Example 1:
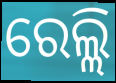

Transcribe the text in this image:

ରେଲ୍ଲି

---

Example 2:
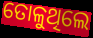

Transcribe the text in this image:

ତୋଳୁଥିଲେ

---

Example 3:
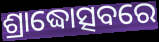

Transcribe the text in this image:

ଶ୍ରାଦ୍ଧୋତ୍ସବରେ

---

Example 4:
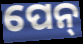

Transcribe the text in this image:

ପେନ୍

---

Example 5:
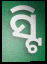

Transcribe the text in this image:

ସ୍ଟି